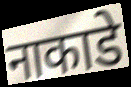
नाकाडे